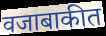
वजाबाकीत